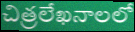
చిత్రలేఖనాలలో